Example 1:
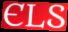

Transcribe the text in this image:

ELS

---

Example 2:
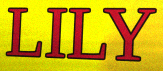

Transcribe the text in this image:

LILY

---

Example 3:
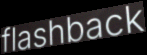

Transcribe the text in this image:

flashback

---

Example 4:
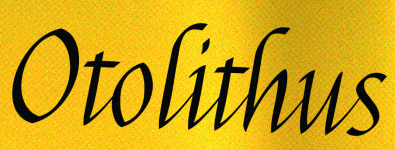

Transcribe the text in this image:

Otolithus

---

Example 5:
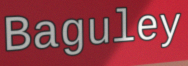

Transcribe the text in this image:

Baguley